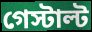
গেস্টাল্ট